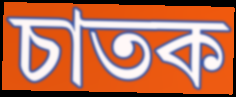
চাতক